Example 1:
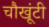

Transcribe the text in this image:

चौखूंटी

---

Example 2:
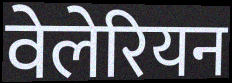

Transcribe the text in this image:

वेलेरियन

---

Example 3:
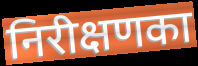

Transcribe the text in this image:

निरीक्षणका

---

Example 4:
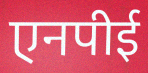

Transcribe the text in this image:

एनपीई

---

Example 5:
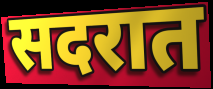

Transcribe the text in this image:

सदरात